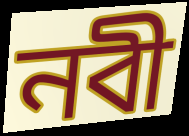
নবী